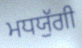
ਮਧਯੁੱਗੀ